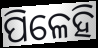
ପିଳେହି